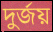
দুর্জয়